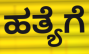
ಹತ್ಯೆಗೆ